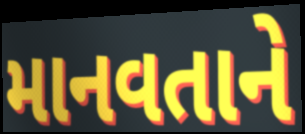
માનવતાને